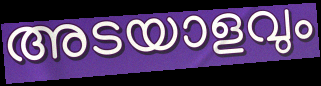
അടയാളവും